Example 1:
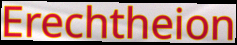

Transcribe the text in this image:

Erechtheion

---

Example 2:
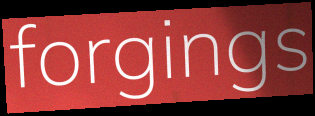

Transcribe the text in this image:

forgings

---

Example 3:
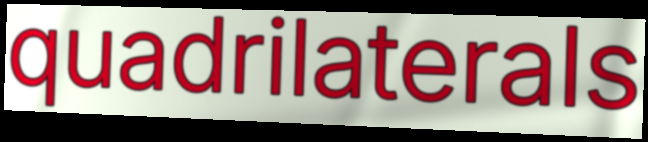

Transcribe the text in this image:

quadrilaterals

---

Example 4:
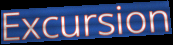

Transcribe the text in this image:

Excursion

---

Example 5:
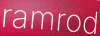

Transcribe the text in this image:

ramrod